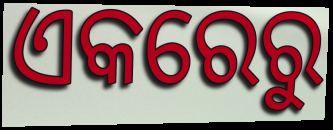
ଏକରେରୁ